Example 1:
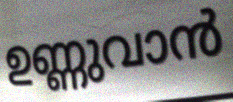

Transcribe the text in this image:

ഉണ്ണുവാൻ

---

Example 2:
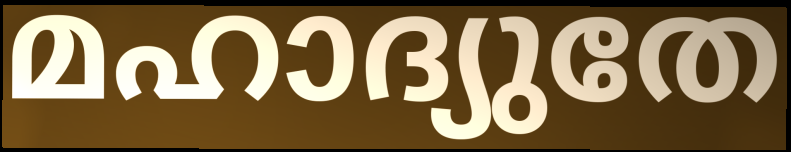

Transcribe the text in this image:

മഹാദ്യുതേ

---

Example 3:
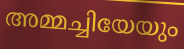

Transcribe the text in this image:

അമ്മച്ചിയേയും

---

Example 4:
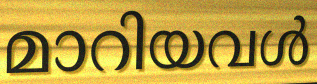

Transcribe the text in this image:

മാറിയവൾ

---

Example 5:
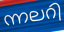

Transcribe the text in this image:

ന്നലറി